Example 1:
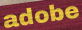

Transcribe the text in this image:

adobe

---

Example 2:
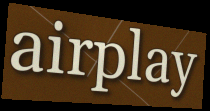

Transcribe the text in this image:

airplay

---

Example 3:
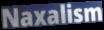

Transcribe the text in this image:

Naxalism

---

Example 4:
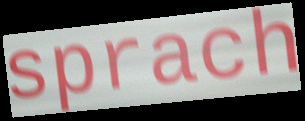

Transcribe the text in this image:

sprach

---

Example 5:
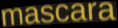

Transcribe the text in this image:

mascara